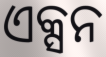
ଏକ୍ସନ